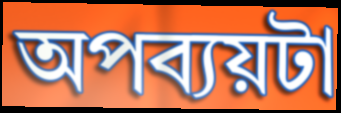
অপব্যয়টা